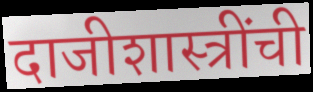
दाजीशास्त्रींची